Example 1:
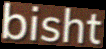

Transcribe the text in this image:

bisht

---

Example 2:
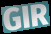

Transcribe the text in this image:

GIR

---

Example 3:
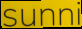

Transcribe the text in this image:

sunni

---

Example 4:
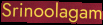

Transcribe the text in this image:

Srinoolagam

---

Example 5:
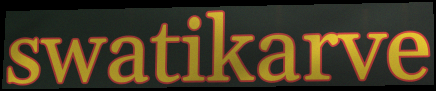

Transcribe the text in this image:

swatikarve